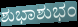
ಶುಭಾಶುಭಂ